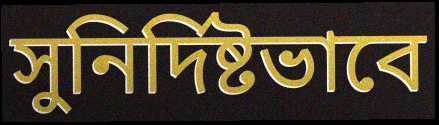
সুনির্দিষ্টভাবে